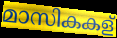
മാസികകള്